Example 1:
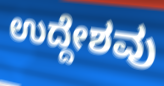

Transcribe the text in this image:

ಉದ್ದೇಶವು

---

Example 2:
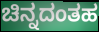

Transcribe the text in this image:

ಚಿನ್ನದಂತಹ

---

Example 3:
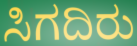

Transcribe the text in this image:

ಸಿಗದಿರು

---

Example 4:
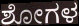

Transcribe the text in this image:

ಶೋಗಳ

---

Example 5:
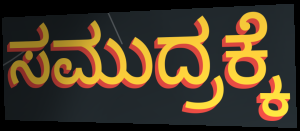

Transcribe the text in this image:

ಸಮುದ್ರಕ್ಕೆ